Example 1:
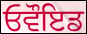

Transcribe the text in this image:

ਓਵੌਇਡ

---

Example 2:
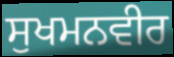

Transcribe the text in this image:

ਸੁਖਮਨਵੀਰ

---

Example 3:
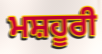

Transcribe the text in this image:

ਮਸ਼ਹੂਰੀ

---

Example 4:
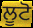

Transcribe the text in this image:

ਲੂਟੋ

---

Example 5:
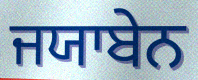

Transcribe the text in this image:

ਜਯਾਬੇਨ